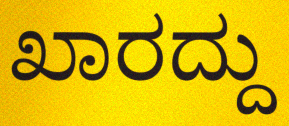
ಖಾರದ್ದು